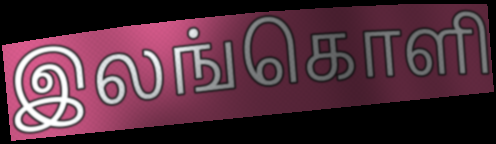
இலங்கொளி